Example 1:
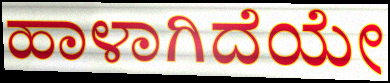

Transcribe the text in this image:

ಹಾಳಾಗಿದೆಯೇ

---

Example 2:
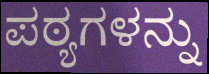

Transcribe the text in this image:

ಪಠ್ಯಗಳನ್ನು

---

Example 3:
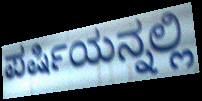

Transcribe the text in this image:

ಪರ್ಷಿಯನ್ನಲ್ಲಿ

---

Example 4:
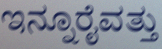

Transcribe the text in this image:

ಇನ್ನೂರೈವತ್ತು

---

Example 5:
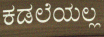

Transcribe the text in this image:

ಕಡಲೆಯಲ್ಲ